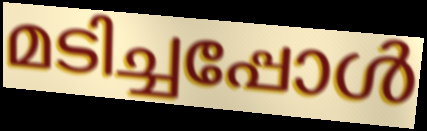
മടിച്ചപ്പോൾ